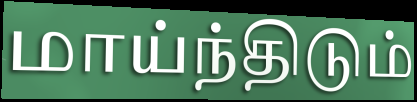
மாய்ந்திடும்